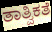
ತಾತ್ವಿಕತೆ